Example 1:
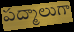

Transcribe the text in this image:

పద్మాలుగా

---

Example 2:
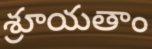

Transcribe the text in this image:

శ్రూయతాం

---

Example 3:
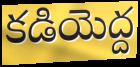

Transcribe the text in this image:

కడియెద్ద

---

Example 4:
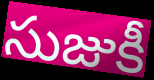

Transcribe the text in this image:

సుజుకీ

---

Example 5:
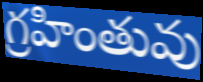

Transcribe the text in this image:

గ్రహింతువు